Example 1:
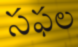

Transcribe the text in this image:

సఫల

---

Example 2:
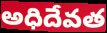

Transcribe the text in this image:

అధిదేవత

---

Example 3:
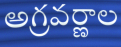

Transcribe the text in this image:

అగ్రవర్ణాల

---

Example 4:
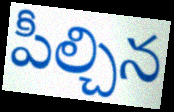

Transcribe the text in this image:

పీల్చిన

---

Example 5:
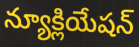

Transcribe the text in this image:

న్యూక్లియేషన్